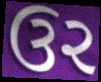
ઉર